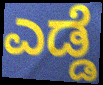
ಎಡ್ಡೆ